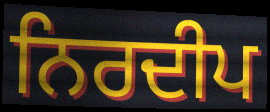
ਨਿਰਦੀਪ